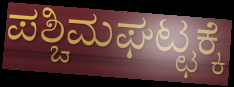
ಪಶ್ಚಿಮಘಟ್ಟಕ್ಕೆ